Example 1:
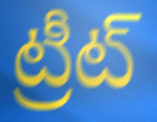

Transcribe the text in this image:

ట్రీట్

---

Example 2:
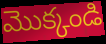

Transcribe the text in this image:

మొక్కండి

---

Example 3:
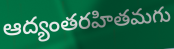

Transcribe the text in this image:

ఆద్యంతరహితమగు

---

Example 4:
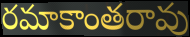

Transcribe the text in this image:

రమాకాంతరావు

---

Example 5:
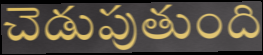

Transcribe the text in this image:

చెడుపుతుంది